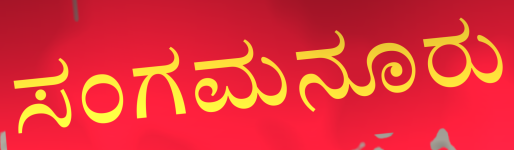
ಸಂಗಮನೂರು